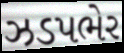
ઝડપભેર